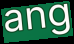
ang